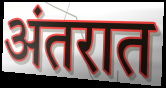
अंतरात